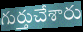
గుర్తుచేశారు